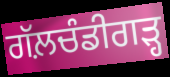
ਗੱਲ਼ਚੰਡੀਗੜ੍ਹ